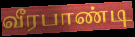
வீரபாண்டி